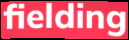
fielding